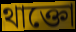
থাক্তো